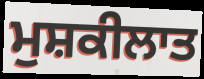
ਮੁਸ਼ਕੀਲਾਤ